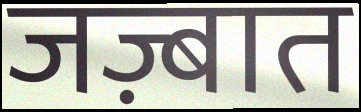
जज़्बात